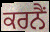
ਕਰਨੈਂ